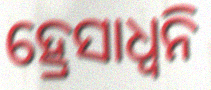
ହ୍ରେସାଧ୍ୱନି